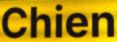
Chien